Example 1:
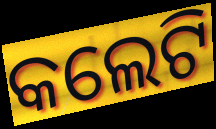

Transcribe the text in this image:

କଲେଟି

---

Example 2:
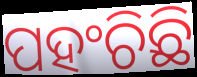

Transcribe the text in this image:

ପହଂଚିଛି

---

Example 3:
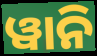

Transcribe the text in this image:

ୱାନି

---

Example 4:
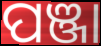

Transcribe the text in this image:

ପଞ୍ଜା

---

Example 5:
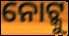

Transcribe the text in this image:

ନୋଟ୍କୁ